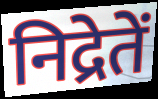
निद्रेतें